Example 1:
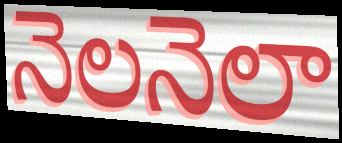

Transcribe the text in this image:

నెలనెలా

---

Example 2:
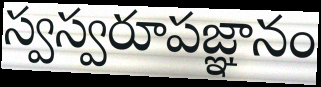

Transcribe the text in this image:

స్వస్వరూపజ్ఞానం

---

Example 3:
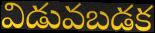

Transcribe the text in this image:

విడువబడక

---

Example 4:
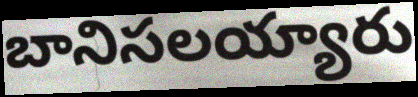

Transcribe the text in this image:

బానిసలయ్యారు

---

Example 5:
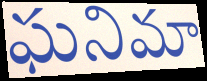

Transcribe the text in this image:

ఘనిమా